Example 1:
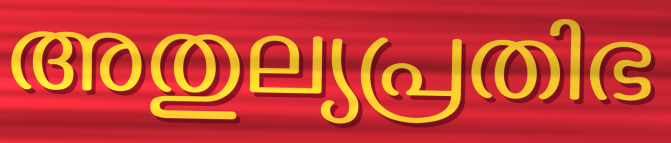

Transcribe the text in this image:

അതുല്യപ്രതിഭ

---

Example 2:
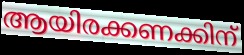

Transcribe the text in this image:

ആയിരക്കണക്കിന്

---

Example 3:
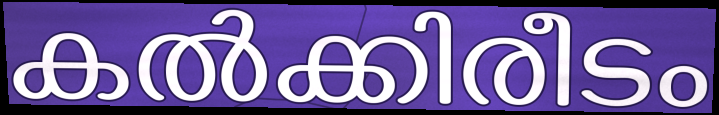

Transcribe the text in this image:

കൽക്കിരീടം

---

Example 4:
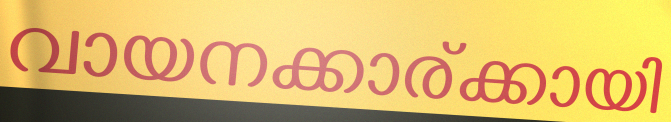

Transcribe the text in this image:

വായനക്കാര്ക്കായി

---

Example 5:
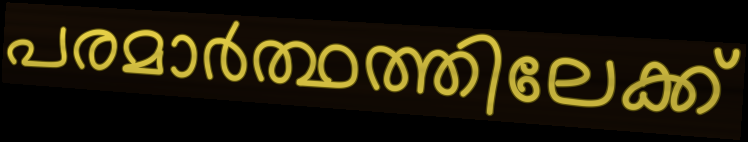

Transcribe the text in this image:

പരമാർത്ഥത്തിലേക്ക്